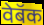
वेबॅक